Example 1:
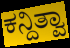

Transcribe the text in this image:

ಕನ್ದಿತ್ವಾ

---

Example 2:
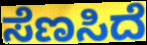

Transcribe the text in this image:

ಸೆಣಸಿದೆ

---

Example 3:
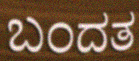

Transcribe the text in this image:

ಬಂದತ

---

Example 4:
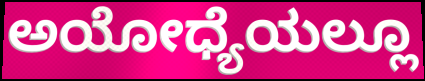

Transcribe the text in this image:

ಅಯೋಧ್ಯೆಯಲ್ಲೂ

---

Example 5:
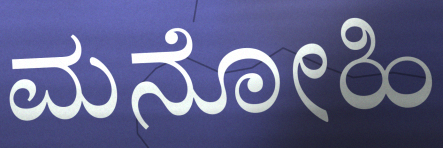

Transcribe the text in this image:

ಮನೋಹಿ